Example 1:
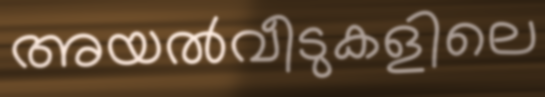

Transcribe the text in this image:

അയൽവീടുകളിലെ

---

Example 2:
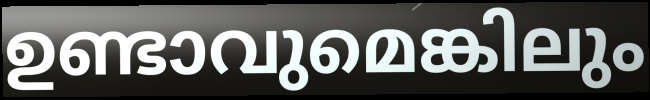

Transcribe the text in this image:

ഉണ്ടാവുമെങ്കിലും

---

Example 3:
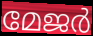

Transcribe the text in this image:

മേജർ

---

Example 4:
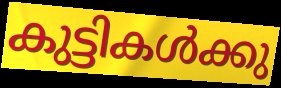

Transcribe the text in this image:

കുട്ടികൾക്കു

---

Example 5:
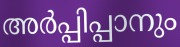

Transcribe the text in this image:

അർപ്പിപ്പാനും